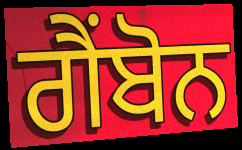
ਗੈਂਬੋਨ